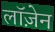
लॉज़ेन